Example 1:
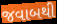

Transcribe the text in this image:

જવાબથી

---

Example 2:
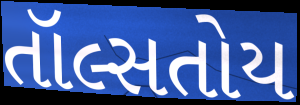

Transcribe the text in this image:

તૉલ્સતોય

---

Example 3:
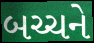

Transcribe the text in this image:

બચ્ચને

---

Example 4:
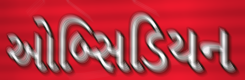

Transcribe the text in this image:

ઓબ્સિડિયન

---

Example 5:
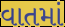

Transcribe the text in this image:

વાતમાં